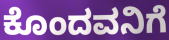
ಕೊಂದವನಿಗೆ